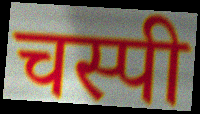
चस्पी